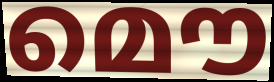
മൌ